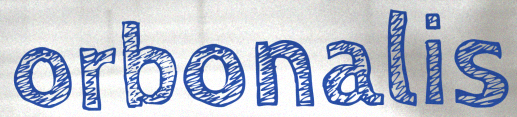
orbonalis